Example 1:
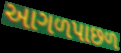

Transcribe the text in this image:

આગળપાછળ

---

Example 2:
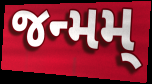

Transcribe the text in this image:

જન્મમ્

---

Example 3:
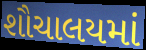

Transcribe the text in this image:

શૌચાલયમાં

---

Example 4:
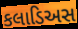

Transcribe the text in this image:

કલાડિઅસ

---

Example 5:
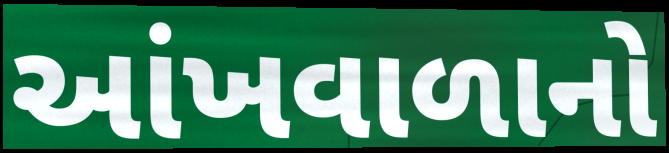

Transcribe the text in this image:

આંખવાળાનો